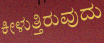
ಕೀಳುತ್ತಿರುವುದು